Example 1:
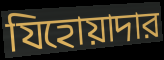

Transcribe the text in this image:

যিহোয়াদার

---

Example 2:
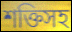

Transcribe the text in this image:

শক্তিসহ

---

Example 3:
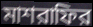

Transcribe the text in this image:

মাশরাফির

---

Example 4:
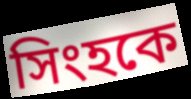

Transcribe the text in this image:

সিংহকে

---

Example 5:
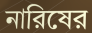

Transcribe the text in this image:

নারিষের